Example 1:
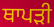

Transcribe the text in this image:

ਥਾਪੜੀ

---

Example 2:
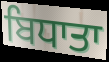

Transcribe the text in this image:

ਬਿਧਾਤਾ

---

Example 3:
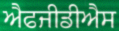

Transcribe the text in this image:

ਐਫਜੀਡੀਐਸ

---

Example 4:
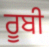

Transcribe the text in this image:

ਰੂਬੀ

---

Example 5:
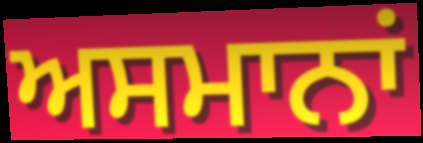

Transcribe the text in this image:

ਅਸਮਾਨਾਂ